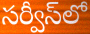
సర్వీస్‌లో